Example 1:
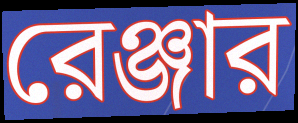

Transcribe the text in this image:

রেঞ্জার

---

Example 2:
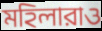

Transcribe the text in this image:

মহিলারাও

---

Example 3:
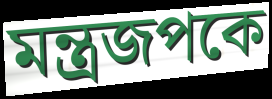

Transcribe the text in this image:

মন্ত্রজপকে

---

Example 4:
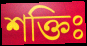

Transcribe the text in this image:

শক্তিঃ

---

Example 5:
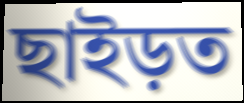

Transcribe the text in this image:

ছাইড়ত